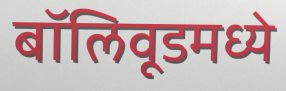
बॉलिवूडमध्ये